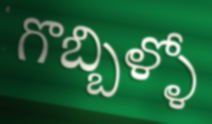
గొబ్బిళ్ళో